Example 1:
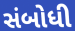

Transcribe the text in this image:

સંબોધી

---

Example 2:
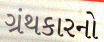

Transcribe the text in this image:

ગ્રંથકારનો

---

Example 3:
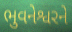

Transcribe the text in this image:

ભુવનેશ્વરને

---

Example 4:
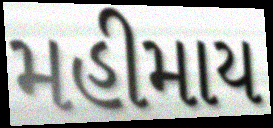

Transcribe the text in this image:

મહીમાય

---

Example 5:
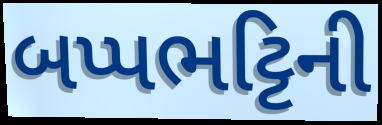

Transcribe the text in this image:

બપ્પભટ્ટિની